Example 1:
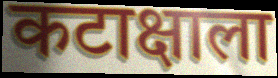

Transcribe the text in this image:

कटाक्षाला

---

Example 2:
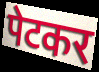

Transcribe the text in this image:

पेटकर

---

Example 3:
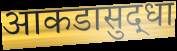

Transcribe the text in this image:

आकडासुद्धा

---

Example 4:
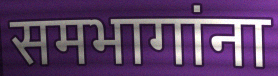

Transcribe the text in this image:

समभागांना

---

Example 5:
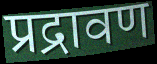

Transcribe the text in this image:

प्रद्रावण